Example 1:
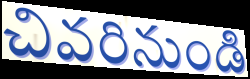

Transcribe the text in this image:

చివరినుండి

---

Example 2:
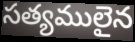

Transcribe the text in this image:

సత్యములైన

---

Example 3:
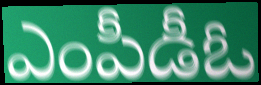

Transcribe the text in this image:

ఎంపీడీఓ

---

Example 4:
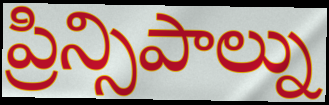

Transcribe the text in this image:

ప్రిన్సిపాల్ను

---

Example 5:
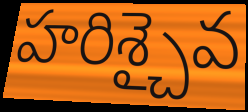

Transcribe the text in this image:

హరిశ్చైవ